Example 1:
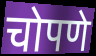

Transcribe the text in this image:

चोपणे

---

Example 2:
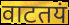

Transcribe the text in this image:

वाटतयं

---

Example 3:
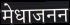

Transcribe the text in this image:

मेधाजनन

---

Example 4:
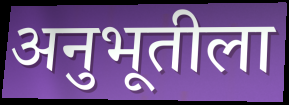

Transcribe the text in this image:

अनुभूतीला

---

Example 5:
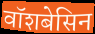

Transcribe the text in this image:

वॉशबेसिन